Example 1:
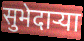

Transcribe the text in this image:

सुभेदाऱ्या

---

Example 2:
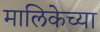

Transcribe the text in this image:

मालिकेच्या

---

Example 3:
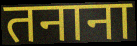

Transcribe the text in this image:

तनाना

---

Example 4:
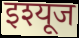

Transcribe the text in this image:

इश्यूज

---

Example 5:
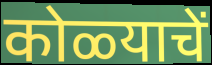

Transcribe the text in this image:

कोळ्याचें